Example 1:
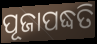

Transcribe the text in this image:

ପୂଜାପଦ୍ଧତି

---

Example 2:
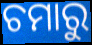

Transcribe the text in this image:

ଚମାରୁ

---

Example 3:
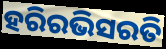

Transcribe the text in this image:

ହରିରଭିସରତି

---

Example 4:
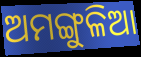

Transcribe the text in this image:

ଅମଙ୍ଗୁଳିଆ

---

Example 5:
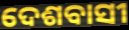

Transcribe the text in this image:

ଦେଶବାସୀ